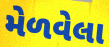
મેળવેલા